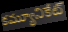
కమ్యూనికేట్